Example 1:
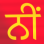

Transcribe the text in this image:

ਨੀਂ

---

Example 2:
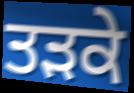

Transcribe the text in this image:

ਤੜਕੇ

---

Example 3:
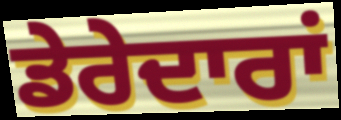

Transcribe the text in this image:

ਡੇਰੇਦਾਰਾਂ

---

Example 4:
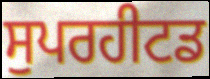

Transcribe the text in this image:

ਸੁਪਰਹੀਟਡ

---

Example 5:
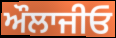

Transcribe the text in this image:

ਔਲਾਜੀਓ